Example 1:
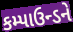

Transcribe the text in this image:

કમ્પાઉન્ડને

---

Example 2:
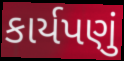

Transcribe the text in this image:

કાર્યપણું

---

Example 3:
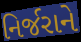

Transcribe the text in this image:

નિર્જરાને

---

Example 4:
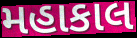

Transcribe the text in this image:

મહાકાલ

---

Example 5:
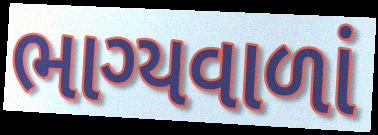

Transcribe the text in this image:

ભાગ્યવાળાં